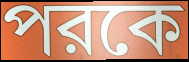
পরকে